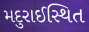
મદુરાઈસ્થિત